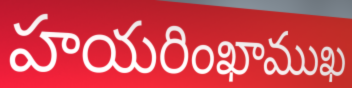
హయరింఖాముఖ